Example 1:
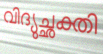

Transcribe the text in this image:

വിദ്യുച്ഛക്തി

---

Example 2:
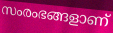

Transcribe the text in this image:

സംരംഭങ്ങളാണ്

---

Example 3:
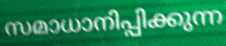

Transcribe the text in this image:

സമാധാനിപ്പിക്കുന്ന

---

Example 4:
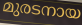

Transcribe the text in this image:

മുരടനായ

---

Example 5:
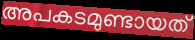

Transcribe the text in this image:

അപകടമുണ്ടായത്